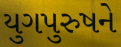
યુગપુરુષને